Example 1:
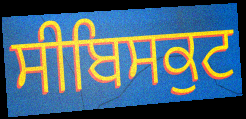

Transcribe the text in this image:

ਸੀਬਿਸਕੁਟ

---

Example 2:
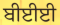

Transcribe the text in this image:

ਬੀਈਈ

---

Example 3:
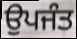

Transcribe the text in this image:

ਉਪਜੰਤ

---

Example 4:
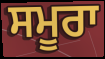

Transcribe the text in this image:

ਸਮੂਰਾ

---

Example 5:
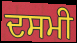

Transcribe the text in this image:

ਦਸਮੀ